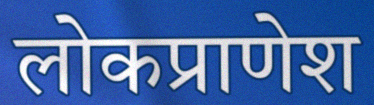
लोकप्राणेश